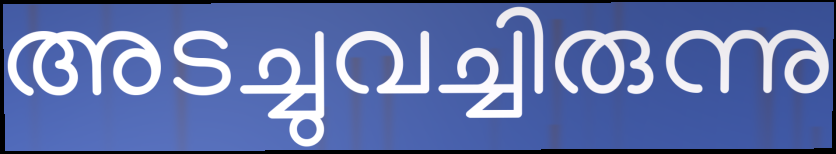
അടച്ചുവച്ചിരുന്നു